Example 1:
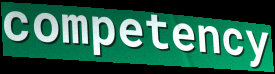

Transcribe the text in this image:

competency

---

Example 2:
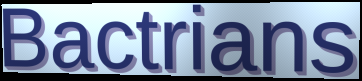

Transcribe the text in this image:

Bactrians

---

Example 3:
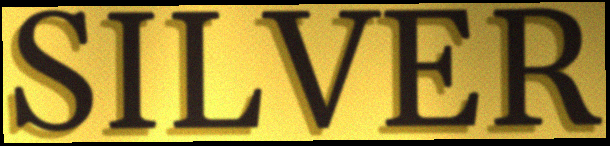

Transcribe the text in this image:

SILVER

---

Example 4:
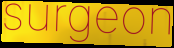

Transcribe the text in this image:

surgeon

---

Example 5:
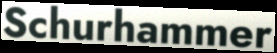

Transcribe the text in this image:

Schurhammer